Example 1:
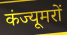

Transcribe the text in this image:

कंज्यूमरों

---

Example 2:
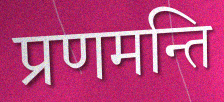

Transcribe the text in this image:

प्रणमन्ति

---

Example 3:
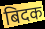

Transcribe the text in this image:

बिदक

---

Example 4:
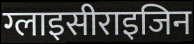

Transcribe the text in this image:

ग्लाइसीराइजिन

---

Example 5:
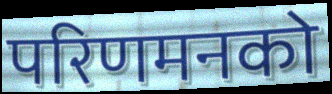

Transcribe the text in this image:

परिणमनको